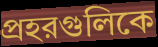
প্রহরগুলিকে